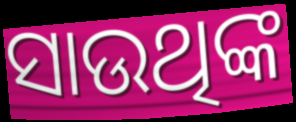
ସାଉଥିଙ୍କ